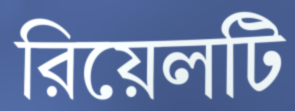
রিয়েলটি